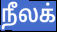
நீலக்